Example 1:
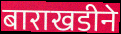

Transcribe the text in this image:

बाराखडीने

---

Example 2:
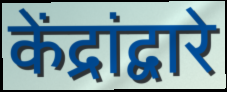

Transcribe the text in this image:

केंद्रांद्वारे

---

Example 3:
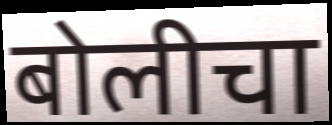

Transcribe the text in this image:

बोलीचा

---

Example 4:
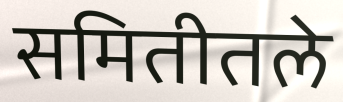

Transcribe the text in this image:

समितीतले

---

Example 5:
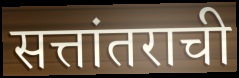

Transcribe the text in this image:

सत्तांतराची